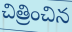
చిత్రించిన